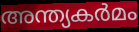
അന്ത്യകർമം